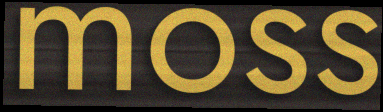
moss